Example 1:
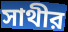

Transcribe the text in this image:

সাথীর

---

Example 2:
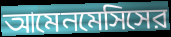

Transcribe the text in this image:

আমেনমেসিসের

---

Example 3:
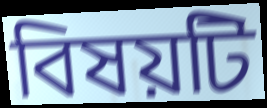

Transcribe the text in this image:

বিষয়টি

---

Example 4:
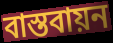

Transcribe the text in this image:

বাস্তবায়ন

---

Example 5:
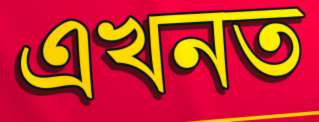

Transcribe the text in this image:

এখনত